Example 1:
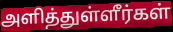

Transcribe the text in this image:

அளித்துள்ளீர்கள்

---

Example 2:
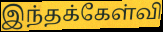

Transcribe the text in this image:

இந்தக்கேள்வி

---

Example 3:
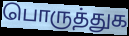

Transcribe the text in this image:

பொருத்துக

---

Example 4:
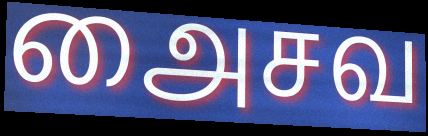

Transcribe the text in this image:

அைசவ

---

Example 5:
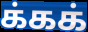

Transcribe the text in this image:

க்கக்